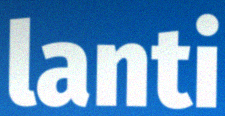
lanti